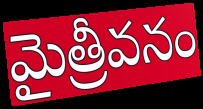
మైత్రీవనం